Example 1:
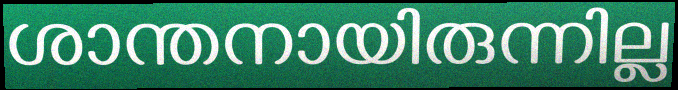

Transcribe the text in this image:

ശാന്തനായിരുന്നില്ല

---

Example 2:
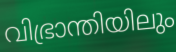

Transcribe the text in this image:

വിഭ്രാന്തിയിലും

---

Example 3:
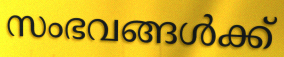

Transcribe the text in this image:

സംഭവങ്ങൾക്ക്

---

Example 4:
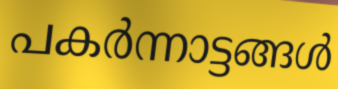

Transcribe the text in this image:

പകർന്നാട്ടങ്ങൾ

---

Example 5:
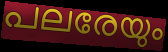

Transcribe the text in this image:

പലരേയും